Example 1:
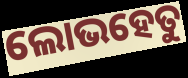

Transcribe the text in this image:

ଲୋଭହେତୁ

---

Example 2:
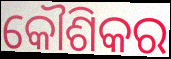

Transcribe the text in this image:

କୌଶିକର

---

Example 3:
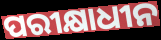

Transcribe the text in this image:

ପରୀକ୍ଷାଧୀନ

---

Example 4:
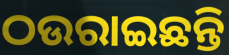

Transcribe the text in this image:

ଠଉରାଇଛନ୍ତି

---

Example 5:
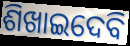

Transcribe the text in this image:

ଶିଖାଇଦେବି